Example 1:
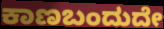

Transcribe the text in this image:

ಕಾಣಬಂದುದೇ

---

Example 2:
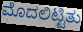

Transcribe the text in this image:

ಮೊದಲಿಟ್ಟಿತು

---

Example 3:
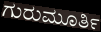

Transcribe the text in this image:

ಗುರುಮೂರ್ತಿ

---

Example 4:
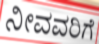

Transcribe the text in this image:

ನೀವವರಿಗೆ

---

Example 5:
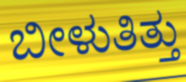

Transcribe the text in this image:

ಬೀಳುತಿತ್ತು